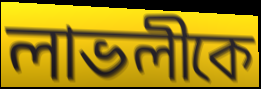
লাভলীকে